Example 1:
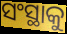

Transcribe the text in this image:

ସଂସ୍ଥାକୁ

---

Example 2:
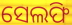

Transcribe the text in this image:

ସେଲଫି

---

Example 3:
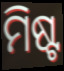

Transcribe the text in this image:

ମିଷ୍ଟ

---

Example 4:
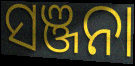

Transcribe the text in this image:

ସଞ୍ଜନା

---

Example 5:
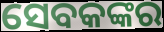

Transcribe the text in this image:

ସେବକଙ୍କର